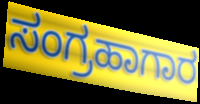
ಸಂಗ್ರಹಾಗಾರ